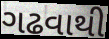
ગઢવાથી